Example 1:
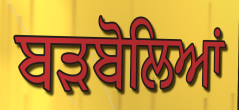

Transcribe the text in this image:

ਬੜਬੋਲਿਆਂ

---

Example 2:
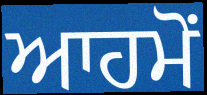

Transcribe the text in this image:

ਆਹਮੋਂ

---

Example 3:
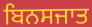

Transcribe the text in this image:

ਬਿਨਸਜਾਤ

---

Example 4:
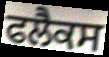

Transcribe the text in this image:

ਫਲੈਕਸ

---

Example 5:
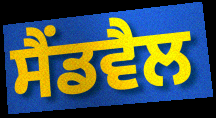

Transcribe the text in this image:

ਸੈਂਡਵੈਲ